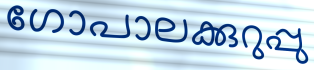
ഗോപാലക്കുറുപ്പു